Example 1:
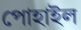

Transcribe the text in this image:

পোহাইল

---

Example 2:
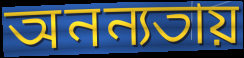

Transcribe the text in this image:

অনন্যতায়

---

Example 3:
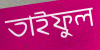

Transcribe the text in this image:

তাইফুল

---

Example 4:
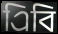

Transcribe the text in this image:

এিবি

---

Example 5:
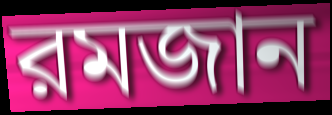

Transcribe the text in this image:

রমজান